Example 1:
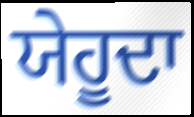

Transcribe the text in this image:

ਯੇਹੂਦਾ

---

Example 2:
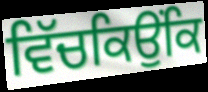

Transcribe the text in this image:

ਵਿੱਚਕਿਉਂਕਿ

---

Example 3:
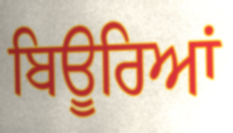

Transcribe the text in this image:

ਬਿਊਰਿਆਂ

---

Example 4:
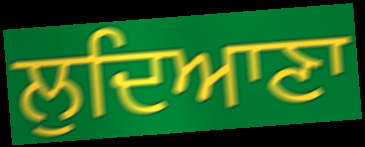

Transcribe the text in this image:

ਲੁਦਿਆਣਾ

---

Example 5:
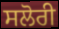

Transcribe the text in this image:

ਸਲੋਰੀ